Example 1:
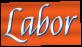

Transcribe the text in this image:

Labor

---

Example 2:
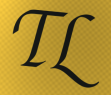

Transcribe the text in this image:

TL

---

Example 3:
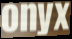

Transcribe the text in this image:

onyx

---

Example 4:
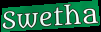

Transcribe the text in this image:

Swetha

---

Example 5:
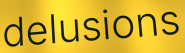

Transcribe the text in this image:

delusions